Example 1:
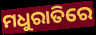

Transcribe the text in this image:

ମଧୁରାତିରେ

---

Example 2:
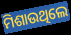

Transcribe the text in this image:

ମିଶାଉଥିଲେ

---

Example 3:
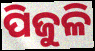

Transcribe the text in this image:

ପିଜୁଳି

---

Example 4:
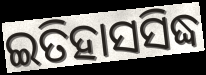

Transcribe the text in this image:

ଇତିହାସସିଦ୍ଧ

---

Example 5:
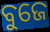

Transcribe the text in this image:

ବୁଜେ